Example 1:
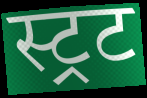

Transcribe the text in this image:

स्ट्रट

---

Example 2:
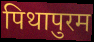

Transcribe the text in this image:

पिथापुरम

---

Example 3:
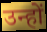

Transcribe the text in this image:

उन्हों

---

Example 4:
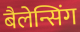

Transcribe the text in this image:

बैलेन्सिंग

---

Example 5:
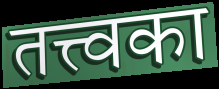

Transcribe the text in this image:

तत्त्वका